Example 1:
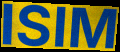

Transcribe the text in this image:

ISIM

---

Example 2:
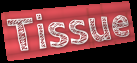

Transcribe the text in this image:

Tissue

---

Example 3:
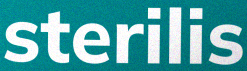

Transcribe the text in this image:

sterilis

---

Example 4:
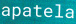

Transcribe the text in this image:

apatela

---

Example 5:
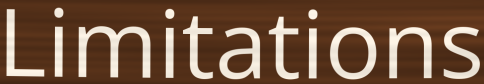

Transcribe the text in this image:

Limitations